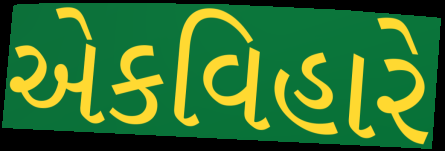
એકવિહારે